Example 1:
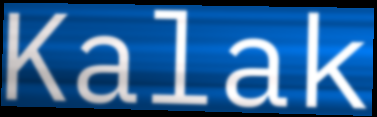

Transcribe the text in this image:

Kalak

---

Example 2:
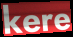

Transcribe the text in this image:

kere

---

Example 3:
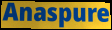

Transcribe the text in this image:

Anaspure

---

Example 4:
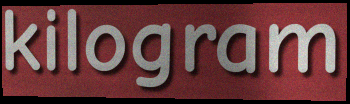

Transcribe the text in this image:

kilogram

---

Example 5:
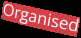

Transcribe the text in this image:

Organised